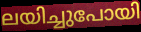
ലയിച്ചുപോയി